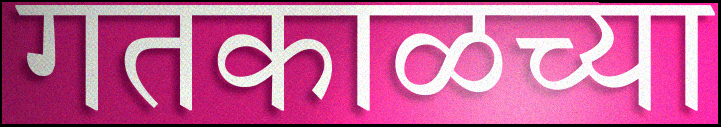
गतकाळच्या